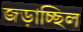
জড়াচ্ছিল